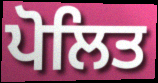
ਪੋਲਿਤ